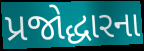
પ્રજોદ્ધારના